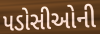
પડોસીઓની